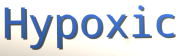
Hypoxic